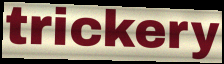
trickery